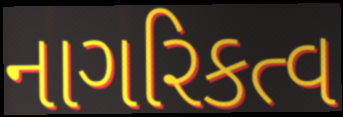
નાગરિકત્વ